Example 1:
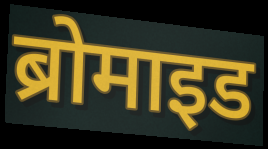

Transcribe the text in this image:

ब्रोमाइड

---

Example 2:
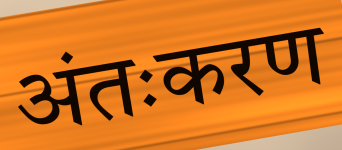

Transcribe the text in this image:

अंतःकरण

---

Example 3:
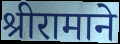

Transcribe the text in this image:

श्रीरामाने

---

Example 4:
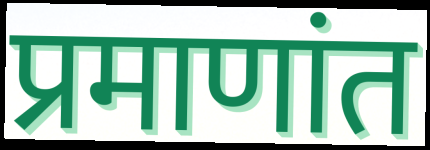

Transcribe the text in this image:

प्रमाणांत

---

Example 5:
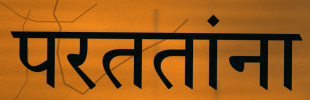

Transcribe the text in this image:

परततांना